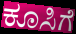
ಕೂಸಿಗೆ